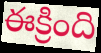
ఈక్రింది